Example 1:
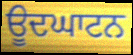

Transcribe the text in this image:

ਊਦਘਾਟਨ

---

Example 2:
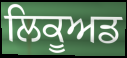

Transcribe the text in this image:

ਲਿਕੂਅਡ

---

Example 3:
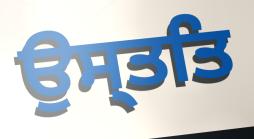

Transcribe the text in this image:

ਉਸ੍ਤਤਿ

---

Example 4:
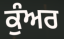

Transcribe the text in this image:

ਕੁੰਅਰ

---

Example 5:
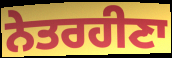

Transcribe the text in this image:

ਨੇਤਰਹੀਣਾ